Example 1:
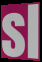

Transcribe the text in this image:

sl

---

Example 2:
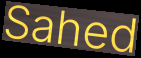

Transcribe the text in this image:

Sahed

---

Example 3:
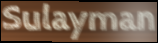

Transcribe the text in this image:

Sulayman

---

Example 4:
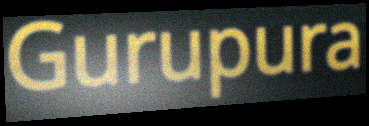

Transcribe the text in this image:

Gurupura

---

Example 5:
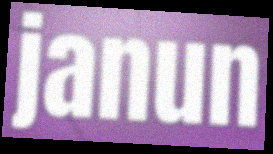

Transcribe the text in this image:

janun